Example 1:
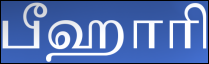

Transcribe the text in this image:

பீஹாரி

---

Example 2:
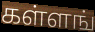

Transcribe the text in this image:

கள்ளங்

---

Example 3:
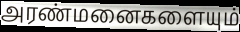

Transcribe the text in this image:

அரண்மனைகளையும்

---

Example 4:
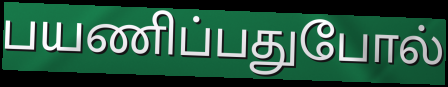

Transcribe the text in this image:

பயணிப்பதுபோல்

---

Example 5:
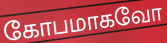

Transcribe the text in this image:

கோபமாகவோ